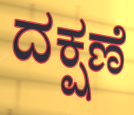
ದಕ್ಷಣೆ